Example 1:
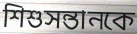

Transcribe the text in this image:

শিশুসন্তানকে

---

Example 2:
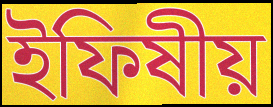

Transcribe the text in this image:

ইফিষীয়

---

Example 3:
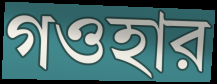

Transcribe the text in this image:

গওহার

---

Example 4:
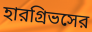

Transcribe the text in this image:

হারগ্রিভসের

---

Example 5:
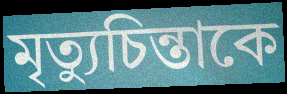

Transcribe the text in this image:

মৃত্যুচিন্তাকে